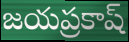
జయప్రకాష్